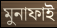
মুনাফাই